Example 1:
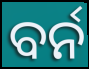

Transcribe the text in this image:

ବର୍ନ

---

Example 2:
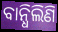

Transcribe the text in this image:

ବାନ୍ଧିଲିଣି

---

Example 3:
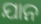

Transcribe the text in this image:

ଯାନ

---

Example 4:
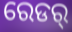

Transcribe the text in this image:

ରେଡର୍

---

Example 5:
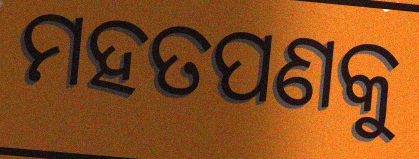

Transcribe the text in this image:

ମହତପଣକୁ